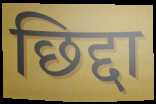
छिद्दा